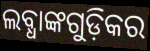
ଲବ୍ଧାଙ୍କଗୁଡ଼ିକର